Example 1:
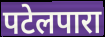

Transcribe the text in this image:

पटेलपारा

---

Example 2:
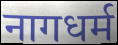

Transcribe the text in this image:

नागधर्म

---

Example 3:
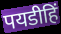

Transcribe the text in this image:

पयडीहिं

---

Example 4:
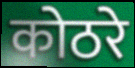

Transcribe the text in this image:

कोठरे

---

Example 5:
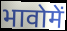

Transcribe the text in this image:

भावोमें